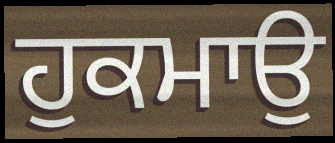
ਹੁਕਮਾਉ